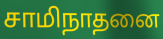
சாமிநாதனை